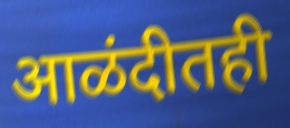
आळंदीतही